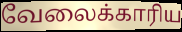
வேலைக்காரிய